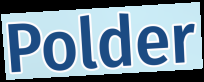
Polder